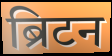
ब्रिटन